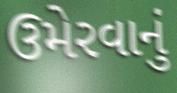
ઉમેરવાનું